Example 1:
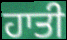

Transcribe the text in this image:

ਹਾਤੀ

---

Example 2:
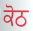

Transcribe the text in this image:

ਕੋਠ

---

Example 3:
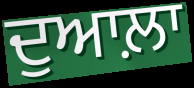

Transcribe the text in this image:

ਦੁਆਲ਼ਾ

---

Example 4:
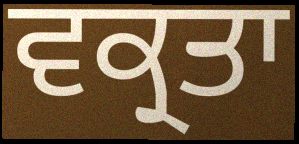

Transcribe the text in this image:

ਵਕ੍ਰਤਾ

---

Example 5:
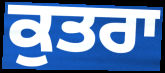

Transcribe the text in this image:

ਕੁਤਰਾ